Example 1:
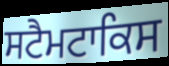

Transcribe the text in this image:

ਸਟੈਮਟਾਕਿਸ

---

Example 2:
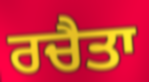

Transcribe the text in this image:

ਰਚੈਤਾ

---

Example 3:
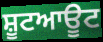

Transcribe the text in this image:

ਸ਼ੂਟਆਊਟ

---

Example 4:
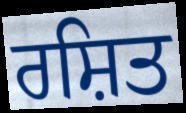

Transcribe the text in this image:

ਰਸ਼ਿਤ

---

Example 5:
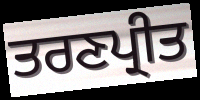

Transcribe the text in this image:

ਤਰਣਪ੍ਰੀਤ